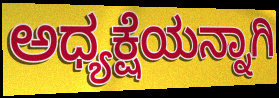
ಅಧ್ಯಕ್ಷೆಯನ್ನಾಗಿ